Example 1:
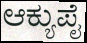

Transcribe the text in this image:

ಆಕ್ಯುಪೈ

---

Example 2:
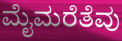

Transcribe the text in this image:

ಮೈಮರೆತೆವು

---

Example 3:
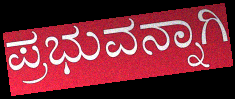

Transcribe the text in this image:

ಪ್ರಭುವನ್ನಾಗಿ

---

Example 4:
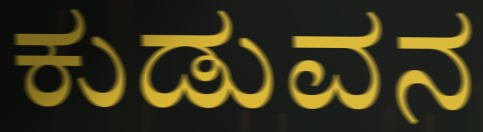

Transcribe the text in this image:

ಕುಡುವನ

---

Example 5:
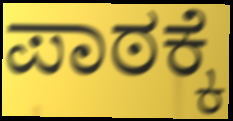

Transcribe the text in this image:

ಪಾಠಕ್ಕೆ